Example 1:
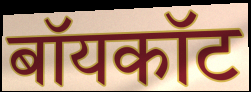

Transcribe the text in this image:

बॉयकॉट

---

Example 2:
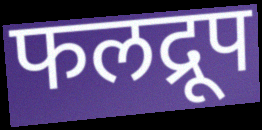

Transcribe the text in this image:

फलद्रूप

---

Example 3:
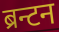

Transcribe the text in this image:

ब्रन्टन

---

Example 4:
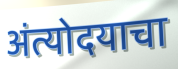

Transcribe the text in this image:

अंत्योदयाचा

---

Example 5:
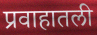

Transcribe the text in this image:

प्रवाहातली